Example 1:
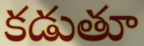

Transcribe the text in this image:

కడుతూ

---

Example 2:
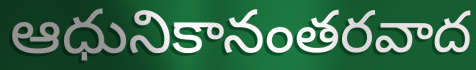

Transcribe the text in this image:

ఆధునికానంతరవాద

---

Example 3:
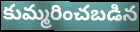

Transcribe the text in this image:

కుమ్మరించబడిన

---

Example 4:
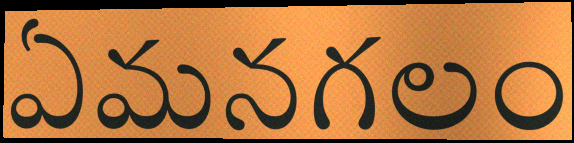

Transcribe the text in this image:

ఏమనగలం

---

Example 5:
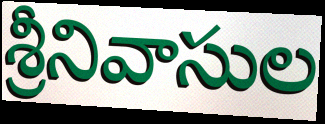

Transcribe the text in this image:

శ్రీనివాసుల